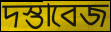
দস্তাবেজ